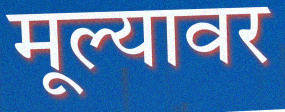
मूल्यावर